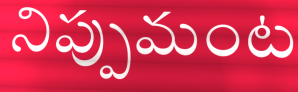
నిప్పుమంట